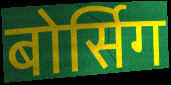
बोर्सिग